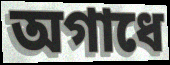
অগাধে